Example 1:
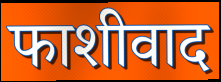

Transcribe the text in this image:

फाशीवाद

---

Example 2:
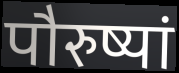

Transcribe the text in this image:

पौरुष्यां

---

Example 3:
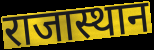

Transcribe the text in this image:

राजास्थान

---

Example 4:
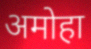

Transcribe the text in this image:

अमोहा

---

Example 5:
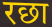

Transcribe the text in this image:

रछा